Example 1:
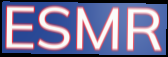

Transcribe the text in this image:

ESMR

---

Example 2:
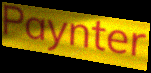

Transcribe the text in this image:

Paynter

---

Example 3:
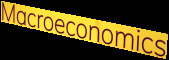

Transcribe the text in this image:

Macroeconomics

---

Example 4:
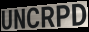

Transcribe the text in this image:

UNCRPD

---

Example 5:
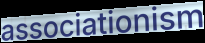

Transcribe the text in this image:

associationism